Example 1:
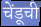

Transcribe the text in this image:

चेंडूची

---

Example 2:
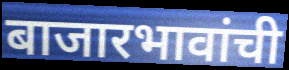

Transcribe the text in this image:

बाजारभावांची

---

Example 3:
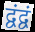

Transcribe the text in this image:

द्वंद्वं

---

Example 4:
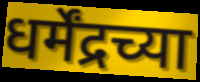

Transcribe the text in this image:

धर्मेंद्रच्या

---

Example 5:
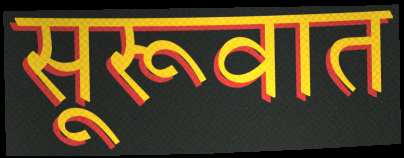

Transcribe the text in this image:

सूरूवात